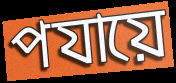
পযায়ে